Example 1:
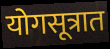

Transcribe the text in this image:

योगसूत्रात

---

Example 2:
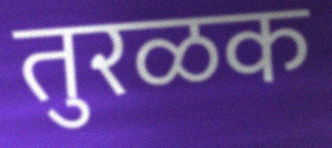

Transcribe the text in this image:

तुरळक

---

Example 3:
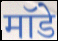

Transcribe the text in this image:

मॉडे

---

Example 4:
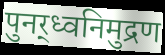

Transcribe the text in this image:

पुनर्ध्वनिमुद्रण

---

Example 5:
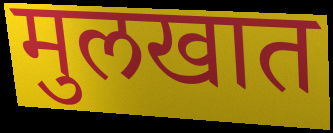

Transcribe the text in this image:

मुलखात